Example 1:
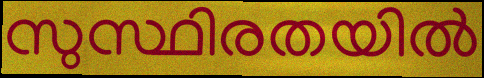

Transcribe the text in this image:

സുസ്ഥിരതയിൽ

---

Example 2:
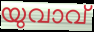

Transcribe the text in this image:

യുവാവ്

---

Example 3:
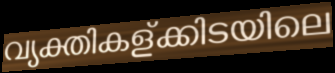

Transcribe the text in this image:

വ്യക്തികള്ക്കിടയിലെ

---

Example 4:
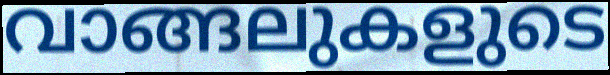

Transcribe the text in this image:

വാങ്ങലുകളുടെ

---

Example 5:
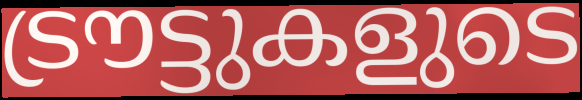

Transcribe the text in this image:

ട്രൗട്ടുകളുടെ